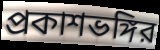
প্রকাশভঙ্গির